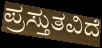
ಪ್ರಸ್ತುತವಿದೆ